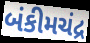
બંકીમચંદ્ર